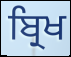
ਬ੍ਰਿਖ